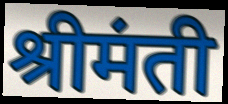
श्रीमंती